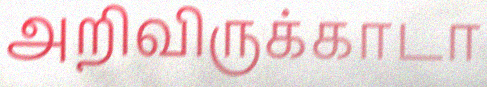
அறிவிருக்காடா